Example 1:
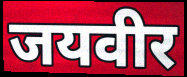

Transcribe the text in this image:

जयवीर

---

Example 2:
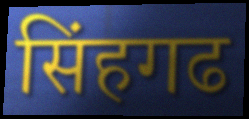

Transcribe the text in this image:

सिंहगढ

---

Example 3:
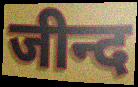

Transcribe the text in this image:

जीन्द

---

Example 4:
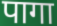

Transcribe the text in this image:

पागा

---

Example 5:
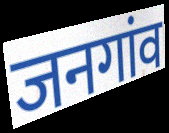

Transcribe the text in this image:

जनगांव